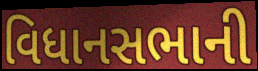
વિધાનસભાની